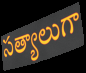
సత్యాలుగా